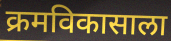
क्रमविकासाला